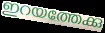
ഇറയത്തേക്കു